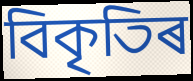
বিকৃতিৰ